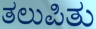
ತಲುಪಿತು